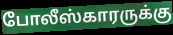
போலீஸ்காரருக்கு